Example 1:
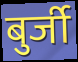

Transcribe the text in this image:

बुर्जी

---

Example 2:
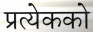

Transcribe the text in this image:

प्रत्येकको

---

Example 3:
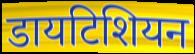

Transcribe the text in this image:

डायटिशियन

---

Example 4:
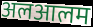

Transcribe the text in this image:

अलआलम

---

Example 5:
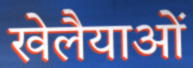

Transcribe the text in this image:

खेलैयाओं